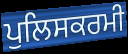
ਪੁਲਿਸਕਰਮੀ